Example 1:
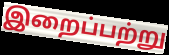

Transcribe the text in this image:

இறைப்பற்று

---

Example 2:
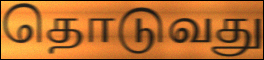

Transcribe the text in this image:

தொடுவது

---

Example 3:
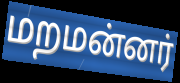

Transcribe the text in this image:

மறமன்னர்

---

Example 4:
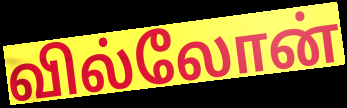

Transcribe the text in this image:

வில்லோன்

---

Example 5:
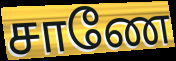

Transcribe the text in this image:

சாணே